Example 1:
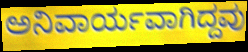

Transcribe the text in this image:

ಅನಿವಾರ್ಯವಾಗಿದ್ದವು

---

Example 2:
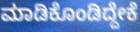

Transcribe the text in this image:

ಮಾಡಿಕೊಂಡಿದ್ದೇಕೆ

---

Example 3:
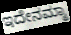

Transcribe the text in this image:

ಇದೇನಮ್ಮಾ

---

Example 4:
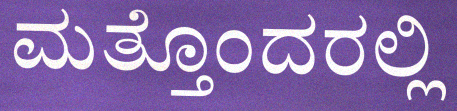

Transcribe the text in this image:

ಮತ್ತೊಂದರಲ್ಲಿ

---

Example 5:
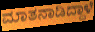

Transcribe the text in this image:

ಮಾತನಾಡಿದ್ದಾಳೆ